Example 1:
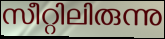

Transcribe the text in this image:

സീറ്റിലിരുന്നു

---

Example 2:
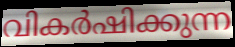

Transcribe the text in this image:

വികർഷിക്കുന്ന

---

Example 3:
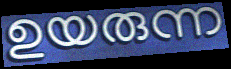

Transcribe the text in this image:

ഉയരുന്ന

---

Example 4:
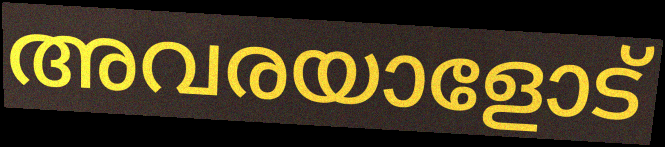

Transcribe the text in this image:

അവരയാളോട്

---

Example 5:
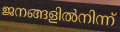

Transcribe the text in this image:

ജനങ്ങളിൽനിന്ന്